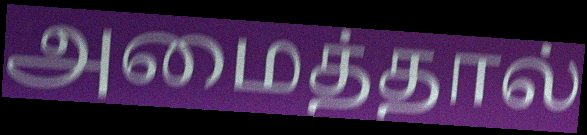
அமைத்தால்